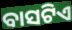
ବାସଟିଏ